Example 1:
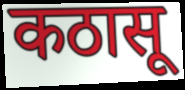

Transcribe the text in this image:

कठासू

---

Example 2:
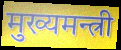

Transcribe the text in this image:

मुख्यमन्त्री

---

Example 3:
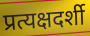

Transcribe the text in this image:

प्रत्यक्षदर्शी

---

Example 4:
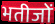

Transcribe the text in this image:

भतीजों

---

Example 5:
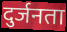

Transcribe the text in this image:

दुर्जनता